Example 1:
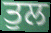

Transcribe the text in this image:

ਤੁਲ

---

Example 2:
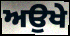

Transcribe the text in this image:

ਅਉਖੇ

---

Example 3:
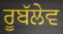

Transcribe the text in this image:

ਰੂਬੱਲੇਵ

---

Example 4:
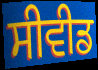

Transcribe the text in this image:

ਸੀਵੀਡ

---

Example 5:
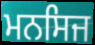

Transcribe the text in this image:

ਮਨਸਿਜ